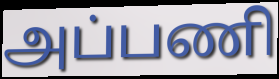
அப்பணி